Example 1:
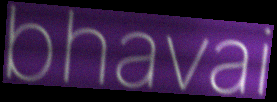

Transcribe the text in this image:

bhavai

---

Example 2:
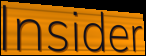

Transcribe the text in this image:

Insider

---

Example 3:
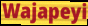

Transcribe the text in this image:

Wajapeyi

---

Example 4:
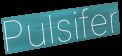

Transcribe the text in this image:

Pulsifer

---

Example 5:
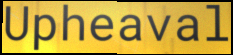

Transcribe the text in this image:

Upheaval